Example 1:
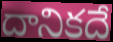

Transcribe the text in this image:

దానికదే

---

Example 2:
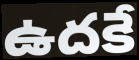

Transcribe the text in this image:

ఉదకే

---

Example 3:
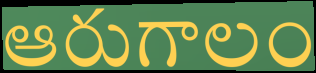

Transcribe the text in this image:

ఆరుగాలం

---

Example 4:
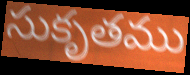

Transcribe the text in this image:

సుకృతము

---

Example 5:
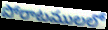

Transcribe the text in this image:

పోరాటములలో